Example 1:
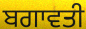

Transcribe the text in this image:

ਬਗਾਵਤੀ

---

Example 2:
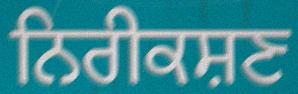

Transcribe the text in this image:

ਨਿਰੀਕਸ਼ਣ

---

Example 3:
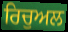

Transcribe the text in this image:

ਰਿਚੁਅਲ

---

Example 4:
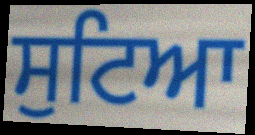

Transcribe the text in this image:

ਸੁਟਿਆ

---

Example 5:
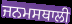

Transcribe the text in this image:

ਜਨਮਸਥਾਲੀ